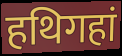
हथिगहां